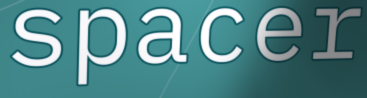
spacer